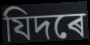
যিদৰে